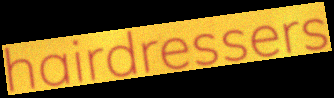
hairdressers